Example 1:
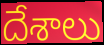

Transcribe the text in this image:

దేశాలు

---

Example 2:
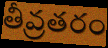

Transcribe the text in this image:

తీవ్రతరం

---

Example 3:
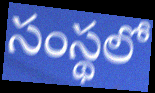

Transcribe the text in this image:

సంస్థలో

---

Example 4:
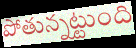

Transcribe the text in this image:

పోతున్నట్టుంది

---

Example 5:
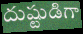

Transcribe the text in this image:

దుష్టుడిగా